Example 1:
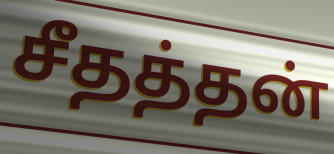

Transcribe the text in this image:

சீதத்தன்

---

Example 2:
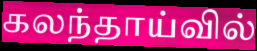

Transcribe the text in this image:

கலந்தாய்வில்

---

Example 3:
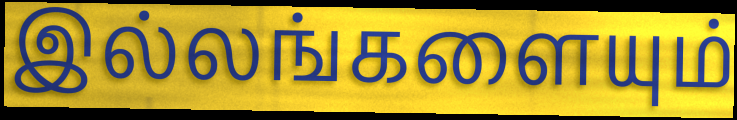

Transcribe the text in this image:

இல்லங்களையும்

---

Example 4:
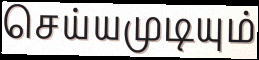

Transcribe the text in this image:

செய்யமுடியும்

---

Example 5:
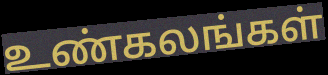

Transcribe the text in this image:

உண்கலங்கள்